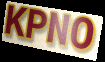
KPNO